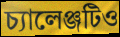
চ্যালেঞ্জটিও